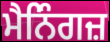
ਮੈਨਿੰਗਜ਼